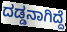
ದಡ್ಡನಾಗಿದ್ದೆ